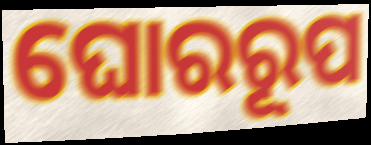
ଘୋରରୂପ